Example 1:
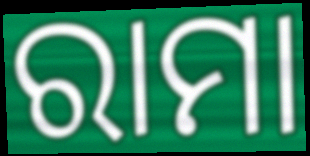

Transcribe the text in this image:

ରାମା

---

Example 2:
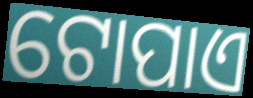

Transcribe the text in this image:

ଟୋପାଏ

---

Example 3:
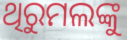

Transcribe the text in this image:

ଥିରୁମଲଙ୍କୁ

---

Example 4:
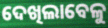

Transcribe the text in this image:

ଦେଖିଲାବେଳୁ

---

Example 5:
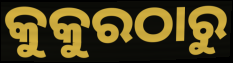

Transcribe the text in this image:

କୁକୁରଠାରୁ